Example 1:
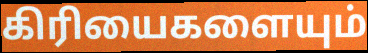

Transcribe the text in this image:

கிரியைகளையும்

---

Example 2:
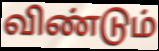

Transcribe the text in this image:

விண்டும்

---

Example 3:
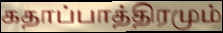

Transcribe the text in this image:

கதாப்பாத்திரமும்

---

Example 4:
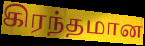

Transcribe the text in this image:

கிரந்தமான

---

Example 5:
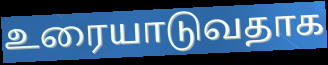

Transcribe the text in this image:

உரையாடுவதாக